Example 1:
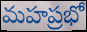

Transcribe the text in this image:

మహప్రభో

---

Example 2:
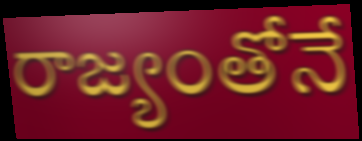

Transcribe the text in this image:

రాజ్యంతోనే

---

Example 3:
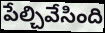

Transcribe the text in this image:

పేల్చివేసింది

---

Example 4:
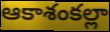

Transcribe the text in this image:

ఆకాశంకల్లా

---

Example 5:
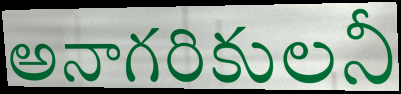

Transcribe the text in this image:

అనాగరికులనీ